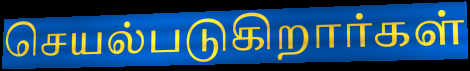
செயல்படுகிறார்கள்